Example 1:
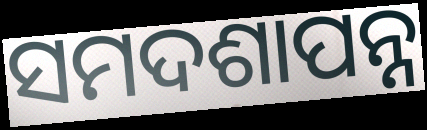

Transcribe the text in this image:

ସମଦଶାପନ୍ନ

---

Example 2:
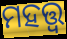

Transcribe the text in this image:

ମହତ୍ତ୍ବ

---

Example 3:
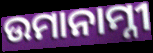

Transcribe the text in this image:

ଉମାନାମ୍ନୀ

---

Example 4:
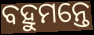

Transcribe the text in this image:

ବହୁମନ୍ତେ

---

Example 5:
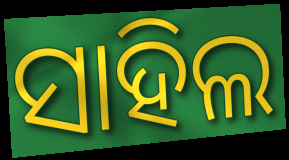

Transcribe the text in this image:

ସାହିଲ